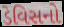
ડેવિસનો